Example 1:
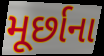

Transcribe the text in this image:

મૂર્છાના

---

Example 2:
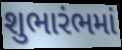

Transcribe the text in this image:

શુભારંભમાં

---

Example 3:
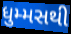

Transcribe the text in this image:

ધુમ્મસથી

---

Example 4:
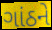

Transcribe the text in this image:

ગાંઠને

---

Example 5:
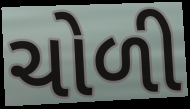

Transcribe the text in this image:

ચોળી